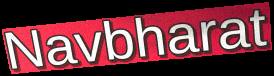
Navbharat